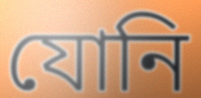
যোনি